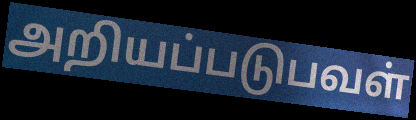
அறியப்படுபவள்